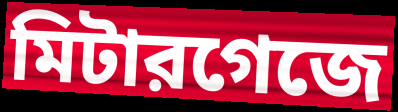
মিটারগেজে